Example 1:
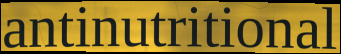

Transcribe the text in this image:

antinutritional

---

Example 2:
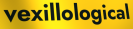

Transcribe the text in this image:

vexillological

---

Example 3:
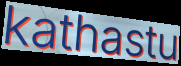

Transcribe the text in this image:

kathastu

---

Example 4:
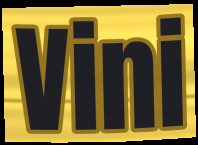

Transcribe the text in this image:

Vini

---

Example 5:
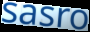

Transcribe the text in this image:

sasro